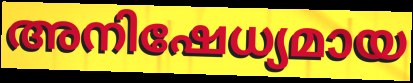
അനിഷേധ്യമായ